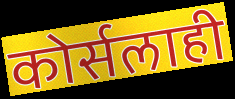
कोर्सलाही